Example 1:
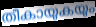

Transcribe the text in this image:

തീകായുകയും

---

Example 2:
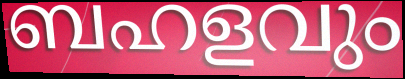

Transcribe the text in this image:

ബഹളവും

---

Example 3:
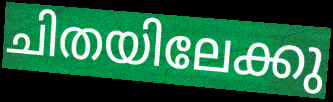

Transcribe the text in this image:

ചിതയിലേക്കു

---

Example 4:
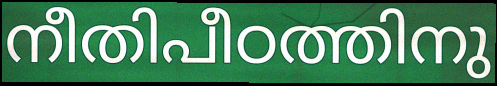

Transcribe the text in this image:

നീതിപീഠത്തിനു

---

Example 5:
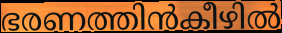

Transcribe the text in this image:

ഭരണത്തിൻകീഴിൽ